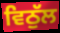
ਵਿਠੁੱਲ